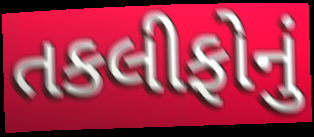
તકલીફોનું